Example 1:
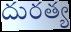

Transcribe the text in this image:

దురత్య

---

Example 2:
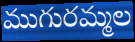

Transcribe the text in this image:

ముగురమ్మల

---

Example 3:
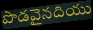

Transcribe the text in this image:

పొడవైనదియు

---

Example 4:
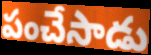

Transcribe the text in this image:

పంచేసాడు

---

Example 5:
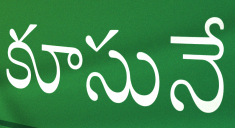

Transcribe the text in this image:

కూసునే